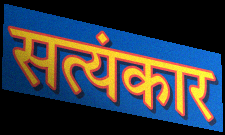
सत्यंकार